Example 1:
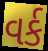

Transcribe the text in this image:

વર્ક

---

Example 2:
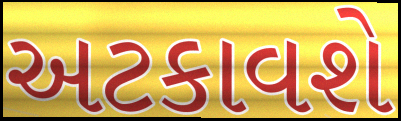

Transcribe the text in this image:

અટકાવશે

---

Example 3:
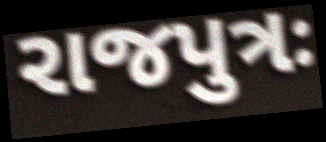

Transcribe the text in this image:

રાજપુત્રઃ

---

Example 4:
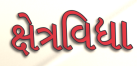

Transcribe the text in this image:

ક્ષેત્રવિદ્યા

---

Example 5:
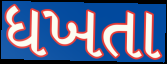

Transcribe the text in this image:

ધખતા